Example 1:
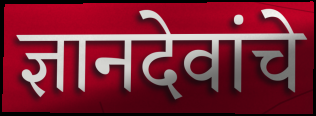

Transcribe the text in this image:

ज्ञानदेवांचे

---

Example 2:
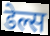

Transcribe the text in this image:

डेल्स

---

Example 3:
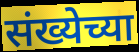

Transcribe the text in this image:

संख्येच्या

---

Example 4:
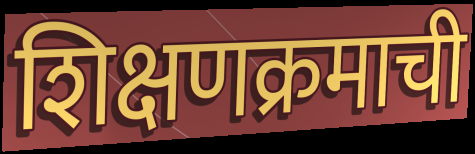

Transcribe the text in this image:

शिक्षणक्रमाची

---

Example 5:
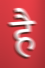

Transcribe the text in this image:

है